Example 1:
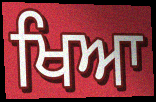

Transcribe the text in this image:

ਖਿਆ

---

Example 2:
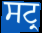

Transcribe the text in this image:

ਸਟ੍ਰ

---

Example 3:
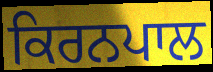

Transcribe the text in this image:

ਕਿਰਨਪਾਲ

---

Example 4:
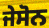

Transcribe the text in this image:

ਜੇਸੋਨ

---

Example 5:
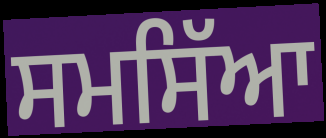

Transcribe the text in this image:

ਸਮਸਿੱਆ